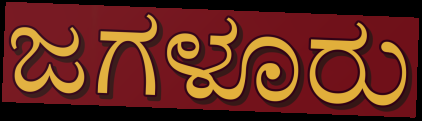
ಜಗಳೂರು